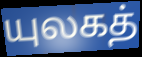
யுலகத்